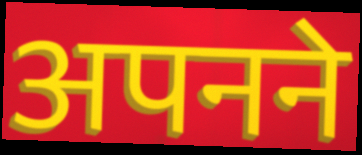
अपनने